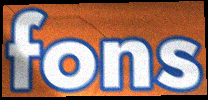
fons